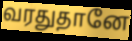
வரதுதானே